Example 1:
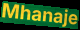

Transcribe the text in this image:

Mhanaje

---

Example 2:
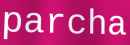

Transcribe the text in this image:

parcha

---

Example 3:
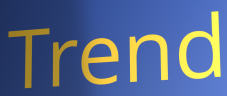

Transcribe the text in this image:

Trend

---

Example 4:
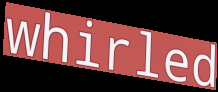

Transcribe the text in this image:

whirled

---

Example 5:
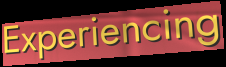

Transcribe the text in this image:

Experiencing